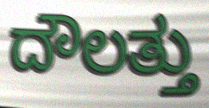
ದೌಲತ್ತು